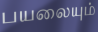
பயலையும்